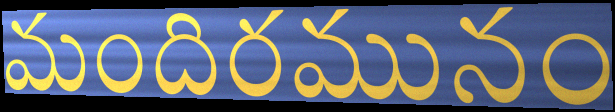
మందిరమునం